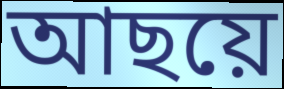
আছয়ে